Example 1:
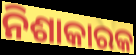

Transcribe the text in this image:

ନିଶାକାରକ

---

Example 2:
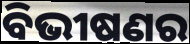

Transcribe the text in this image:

ବିଭୀଷଣର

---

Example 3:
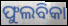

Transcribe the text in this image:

ଫୁଲବିକା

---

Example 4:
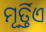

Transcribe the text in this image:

ମୂର୍ତ୍ତିଏ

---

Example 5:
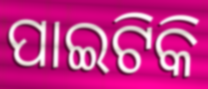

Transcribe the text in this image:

ପାଇଟିକି